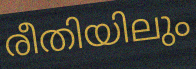
രീതിയിലും